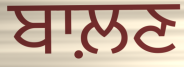
ਬਾਲ਼ਣ